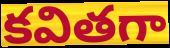
కవితగా